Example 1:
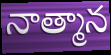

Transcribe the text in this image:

నాత్మాన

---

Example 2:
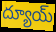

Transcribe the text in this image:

ద్యూయ్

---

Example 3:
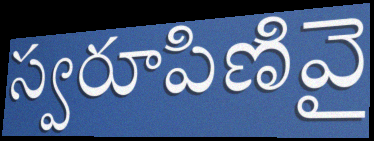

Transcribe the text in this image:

స్వరూపిణివై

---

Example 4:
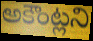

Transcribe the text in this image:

అకౌంట్లని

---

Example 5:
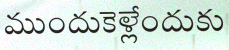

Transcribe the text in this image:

ముందుకెళ్లేందుకు